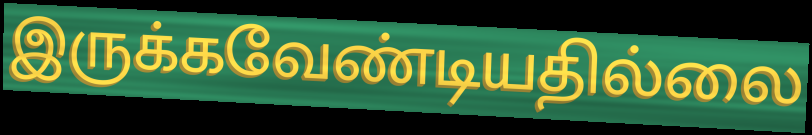
இருக்கவேண்டியதில்லை